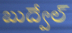
బుద్వేల్